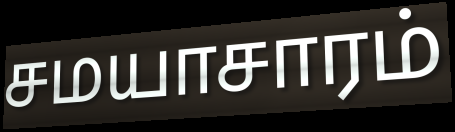
சமயாசாரம்